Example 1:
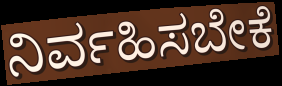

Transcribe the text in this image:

ನಿರ್ವಹಿಸಬೇಕೆ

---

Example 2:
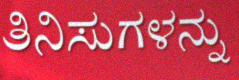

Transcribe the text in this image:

ತಿನಿಸುಗಳನ್ನು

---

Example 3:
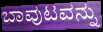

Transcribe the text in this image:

ಬಾವುಟವನ್ನು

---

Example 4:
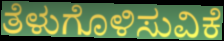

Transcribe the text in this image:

ತೆಳುಗೊಳಿಸುವಿಕೆ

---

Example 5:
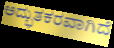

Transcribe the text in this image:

ಅದ್ಭುತಕರವಾಗಿದೆ